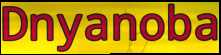
Dnyanoba